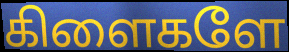
கிளைகளே